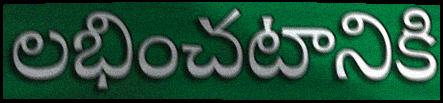
లభించటానికి